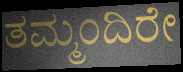
ತಮ್ಮಂದಿರೇ